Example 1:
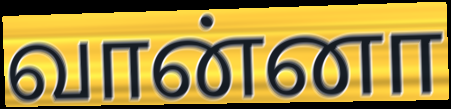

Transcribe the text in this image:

வான்னா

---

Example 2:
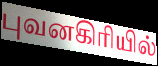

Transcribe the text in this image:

புவனகிரியில்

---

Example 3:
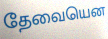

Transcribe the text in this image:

தேவையென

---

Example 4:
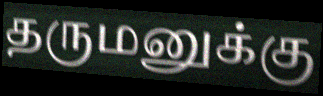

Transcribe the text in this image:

தருமனுக்கு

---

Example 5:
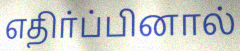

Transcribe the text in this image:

எதிர்ப்பினால்